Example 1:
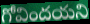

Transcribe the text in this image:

గోవిందయని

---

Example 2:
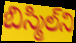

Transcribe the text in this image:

బిస్మిల్‌ని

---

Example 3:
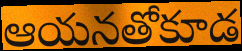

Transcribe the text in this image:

ఆయనతోకూడ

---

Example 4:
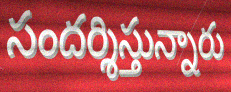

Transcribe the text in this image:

సందర్శిస్తున్నారు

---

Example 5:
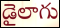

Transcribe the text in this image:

డైలాగు